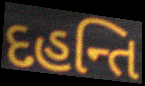
દહન્તિ